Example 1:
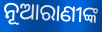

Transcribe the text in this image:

ନୂଆରାଣୀଙ୍କ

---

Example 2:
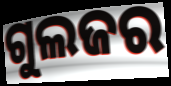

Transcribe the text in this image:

ଗୁଲଜର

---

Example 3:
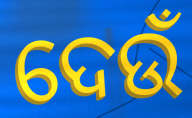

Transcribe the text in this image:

ଦେଉଁ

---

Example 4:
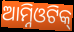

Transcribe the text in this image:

ଆମ୍ନିଓଟିକ୍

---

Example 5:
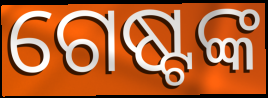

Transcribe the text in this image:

ଗେଷ୍ଟଙ୍କ